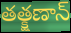
తత్క్షణాన్